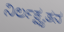
ನಿರ್ಲಕ್ಷ್ಯತನ